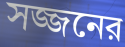
সজ্জনের